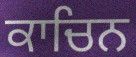
ਕਾਚਿਨ